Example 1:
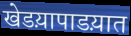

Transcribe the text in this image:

खेडय़ापाडय़ात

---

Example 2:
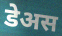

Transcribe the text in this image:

डेअस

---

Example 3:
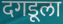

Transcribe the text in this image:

दगडूला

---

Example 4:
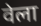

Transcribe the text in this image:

वेला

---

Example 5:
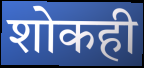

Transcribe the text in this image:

शोकही